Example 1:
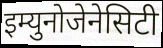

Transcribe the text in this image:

इम्युनोजेनेसिटी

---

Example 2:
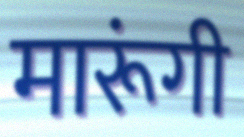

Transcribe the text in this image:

मारूंगी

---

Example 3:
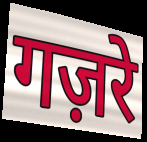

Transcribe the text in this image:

गज़रे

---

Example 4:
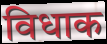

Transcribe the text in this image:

विधाक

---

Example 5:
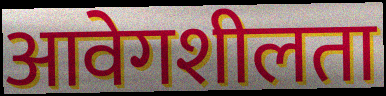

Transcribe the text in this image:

आवेगशीलता